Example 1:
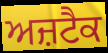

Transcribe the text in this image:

ਅਜ਼ਟੈਕ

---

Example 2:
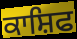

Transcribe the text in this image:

ਕਾਸ਼ਿਫ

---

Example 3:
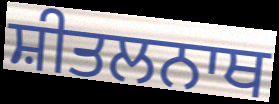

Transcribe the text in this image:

ਸ਼ੀਤਲਨਾਥ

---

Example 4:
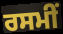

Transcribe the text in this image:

ਰਸਮੀਂ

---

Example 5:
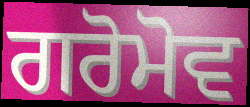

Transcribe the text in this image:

ਗਰੋਮੋਵ